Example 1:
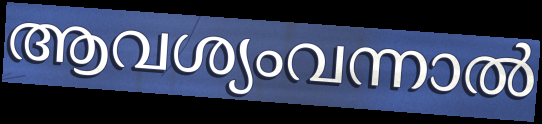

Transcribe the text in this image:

ആവശ്യംവന്നാൽ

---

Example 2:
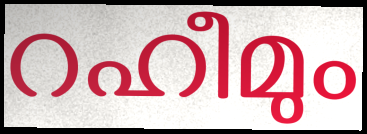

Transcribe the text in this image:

റഹീമും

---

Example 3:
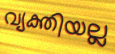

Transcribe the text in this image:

വ്യക്തിയല്ല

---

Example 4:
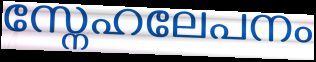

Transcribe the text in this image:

സ്നേഹലേപനം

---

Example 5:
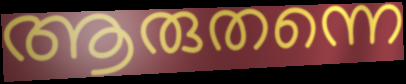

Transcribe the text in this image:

ആരുതന്നെ